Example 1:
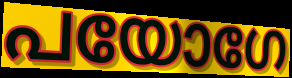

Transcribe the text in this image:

പയോഗേ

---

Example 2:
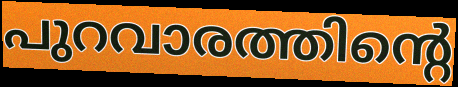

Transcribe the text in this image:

പുറവാരത്തിന്റെ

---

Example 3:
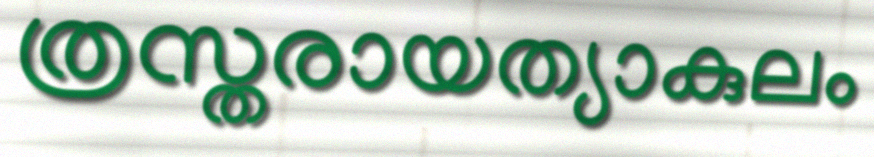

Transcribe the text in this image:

ത്രസ്തരായത്യാകുലം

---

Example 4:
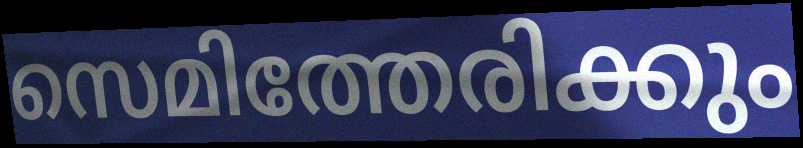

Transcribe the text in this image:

സെമിത്തേരിക്കും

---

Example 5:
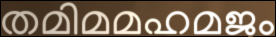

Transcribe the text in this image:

തമിമമഹമജം